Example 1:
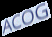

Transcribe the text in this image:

ACOG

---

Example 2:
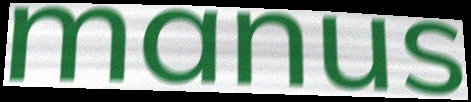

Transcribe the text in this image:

manus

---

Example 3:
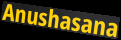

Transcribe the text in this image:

Anushasana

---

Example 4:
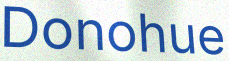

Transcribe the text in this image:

Donohue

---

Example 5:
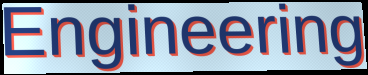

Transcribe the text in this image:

Engineering